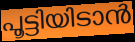
പൂട്ടിയിടാൻ